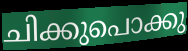
ചിക്കുപൊക്കു